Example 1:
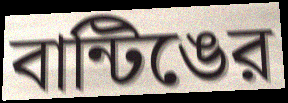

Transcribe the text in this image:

বান্টিঙের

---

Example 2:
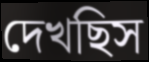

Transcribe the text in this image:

দেখছিস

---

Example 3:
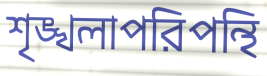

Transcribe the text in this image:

শৃঙ্খলাপরিপন্থি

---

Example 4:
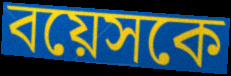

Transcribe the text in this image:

বয়েসকে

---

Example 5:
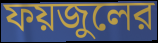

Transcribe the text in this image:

ফয়জুলের